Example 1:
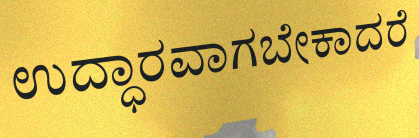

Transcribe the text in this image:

ಉದ್ಧಾರವಾಗಬೇಕಾದರೆ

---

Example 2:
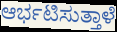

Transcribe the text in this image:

ಆರ್ಭಟಿಸುತ್ತಾಳೆ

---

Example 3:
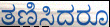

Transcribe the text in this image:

ತಣಿಸಿದರೂ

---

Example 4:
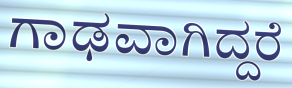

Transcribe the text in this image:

ಗಾಢವಾಗಿದ್ದರೆ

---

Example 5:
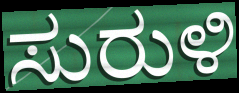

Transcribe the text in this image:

ಸುರುಳಿ